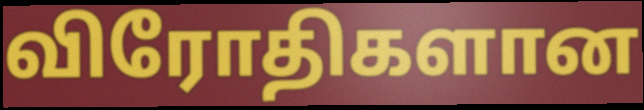
விரோதிகளான